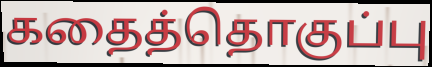
கதைத்தொகுப்பு